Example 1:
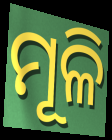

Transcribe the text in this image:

ମୂଳି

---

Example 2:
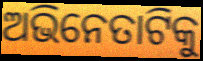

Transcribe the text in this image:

ଅଭିନେତାଟିକୁ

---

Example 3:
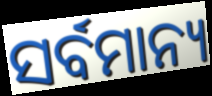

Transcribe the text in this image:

ସର୍ବମାନ୍ୟ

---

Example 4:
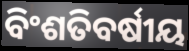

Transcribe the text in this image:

ବିଂଶତିବର୍ଷୀୟ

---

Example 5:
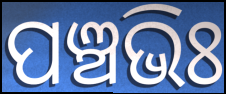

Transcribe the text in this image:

ପଞ୍ଚଭିଃ